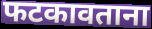
फटकावताना